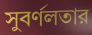
সুবর্ণলতার